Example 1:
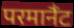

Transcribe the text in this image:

परमानैंट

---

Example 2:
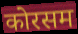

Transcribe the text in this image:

कोरसम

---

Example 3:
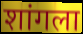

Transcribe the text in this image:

शांगला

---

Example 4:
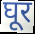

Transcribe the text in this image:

घूर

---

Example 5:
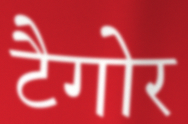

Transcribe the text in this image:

टैगोर